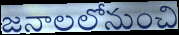
జనాలలోనుంచి